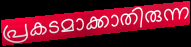
പ്രകടമാക്കാതിരുന്ന